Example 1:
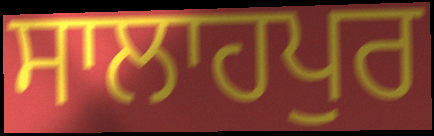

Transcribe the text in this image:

ਸਾਲਾਹਪੁਰ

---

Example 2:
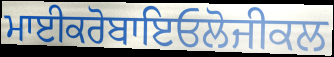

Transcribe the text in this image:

ਮਾਈਕਰੋਬਾਇਓਲੋਜੀਕਲ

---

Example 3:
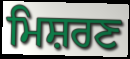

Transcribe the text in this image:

ਮਿਸ਼ਰਣ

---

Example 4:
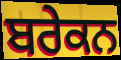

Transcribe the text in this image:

ਬਰੇਕਨ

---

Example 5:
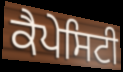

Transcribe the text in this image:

ਕੈਪੇਸਿਟੀ